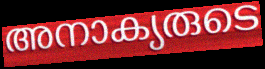
അനാക്യരുടെ